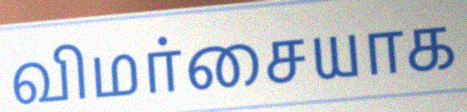
விமர்சையாக